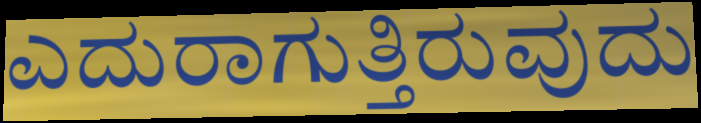
ಎದುರಾಗುತ್ತಿರುವುದು